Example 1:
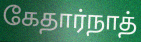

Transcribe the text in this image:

கேதார்நாத்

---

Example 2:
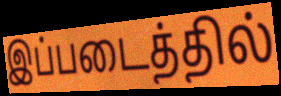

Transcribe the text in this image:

இப்படைத்தில்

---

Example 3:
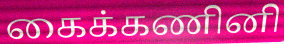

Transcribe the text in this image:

கைக்கணினி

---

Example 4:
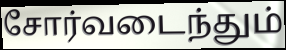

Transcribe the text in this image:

சோர்வடைந்தும்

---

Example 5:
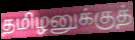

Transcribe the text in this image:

தமிழனுக்குத்